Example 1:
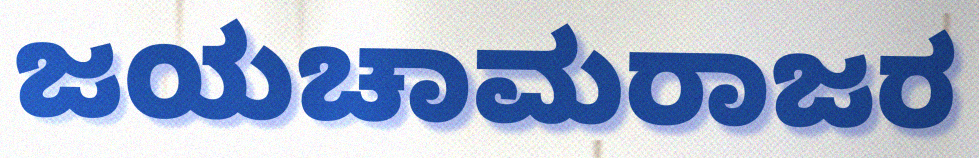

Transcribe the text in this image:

ಜಯಚಾಮರಾಜರ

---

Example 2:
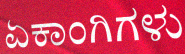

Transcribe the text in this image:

ಏಕಾಂಗಿಗಳು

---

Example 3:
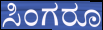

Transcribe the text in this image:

ಸಿಂಗರೂ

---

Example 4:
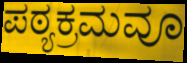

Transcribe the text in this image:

ಪಠ್ಯಕ್ರಮವೂ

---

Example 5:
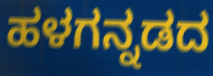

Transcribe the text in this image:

ಹಳಗನ್ನಡದ